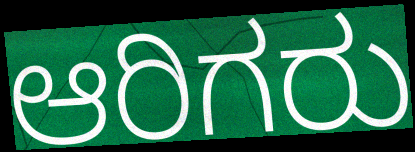
ಆರಿಗರು